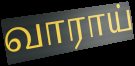
வாராய்